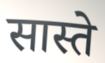
सास्ते